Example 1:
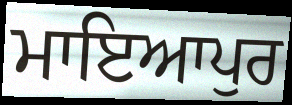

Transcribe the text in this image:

ਮਾਇਆਪੁਰ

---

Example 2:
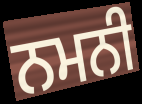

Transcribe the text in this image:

ਨਮਨੀ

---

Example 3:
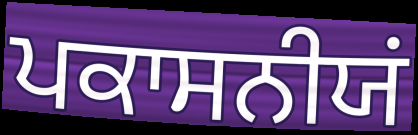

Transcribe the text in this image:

ਪਕਾਸਨੀਯਂ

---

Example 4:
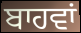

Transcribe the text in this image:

ਬਾਹਵਾਂ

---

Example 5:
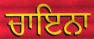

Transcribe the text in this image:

ਚਾਇਨਾ